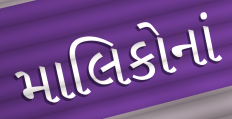
માલિકોનાં